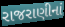
રાજરાણીનાં